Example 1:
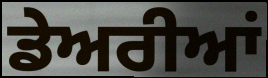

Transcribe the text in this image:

ਡੇਅਰੀਆਂ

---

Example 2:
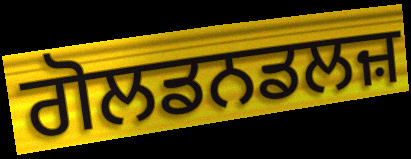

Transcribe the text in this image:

ਗੋਲਡਨਡਲਜ਼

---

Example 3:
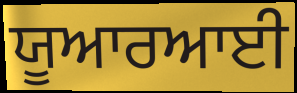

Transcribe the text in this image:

ਯੂਆਰਆਈ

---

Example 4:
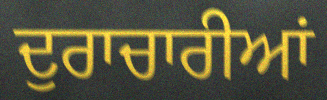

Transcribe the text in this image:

ਦੁਰਾਚਾਰੀਆਂ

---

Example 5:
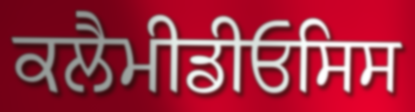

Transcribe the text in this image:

ਕਲੈਮੀਡੀਓਸਿਸ